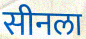
सीनला